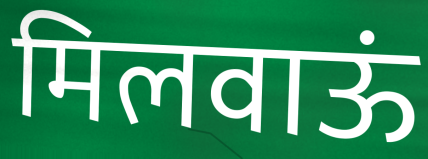
मिलवाऊं